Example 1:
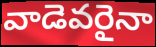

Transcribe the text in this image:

వాడెవరైనా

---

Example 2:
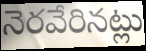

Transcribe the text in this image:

నెరవేరినట్లు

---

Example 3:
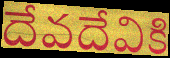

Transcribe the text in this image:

దేవదేవికి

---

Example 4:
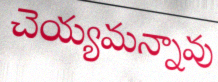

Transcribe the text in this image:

చెయ్యమన్నావు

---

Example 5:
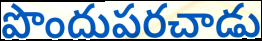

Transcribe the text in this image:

పొందుపరచాడు